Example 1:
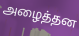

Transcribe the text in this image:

அழைத்தன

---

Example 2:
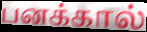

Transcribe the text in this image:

பனக்கால்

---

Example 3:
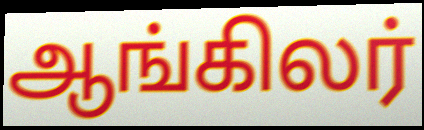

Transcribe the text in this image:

ஆங்கிலர்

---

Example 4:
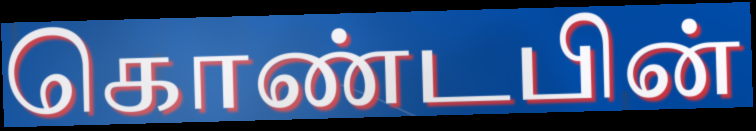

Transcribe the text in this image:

கொண்டபின்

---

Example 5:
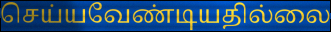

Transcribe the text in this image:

செய்யவேண்டியதில்லை